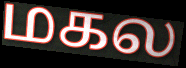
மகல